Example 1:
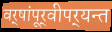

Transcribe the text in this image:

वर्षांपूर्वीपर्यन्त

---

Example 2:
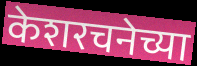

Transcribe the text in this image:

केशरचनेच्या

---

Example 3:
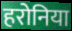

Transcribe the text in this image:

हरोनिया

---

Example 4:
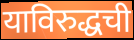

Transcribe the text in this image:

याविरुद्धची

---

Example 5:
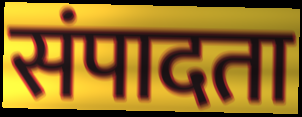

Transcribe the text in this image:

संपादता